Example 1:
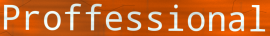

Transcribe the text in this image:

Proffessional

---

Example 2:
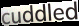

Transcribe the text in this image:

cuddled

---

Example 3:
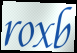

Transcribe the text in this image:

roxb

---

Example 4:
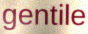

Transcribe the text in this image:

gentile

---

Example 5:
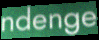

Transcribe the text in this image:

ndenge